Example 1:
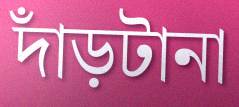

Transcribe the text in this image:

দাঁড়টানা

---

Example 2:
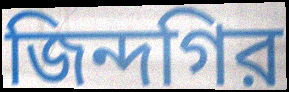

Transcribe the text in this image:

জিন্দগির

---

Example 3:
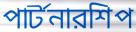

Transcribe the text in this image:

পার্টনারশিপ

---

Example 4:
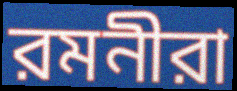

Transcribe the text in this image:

রমনীরা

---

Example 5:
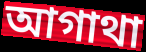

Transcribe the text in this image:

আগাথা